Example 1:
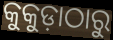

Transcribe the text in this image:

କୁକୁଡ଼ାଠାରୁ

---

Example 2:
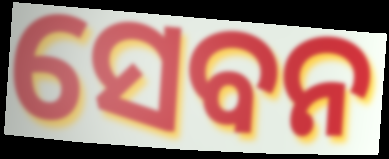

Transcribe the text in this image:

ସେବନ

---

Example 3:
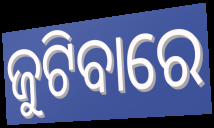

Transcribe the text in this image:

ଜୁଟିବାରେ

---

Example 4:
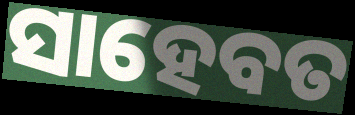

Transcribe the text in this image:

ସାହେବତ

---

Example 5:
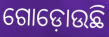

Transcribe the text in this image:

ଗୋଡ଼ୋଉଛି